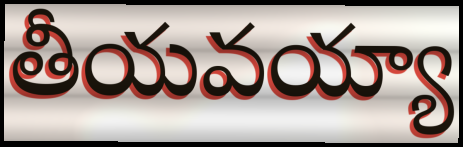
తీయవయ్యా